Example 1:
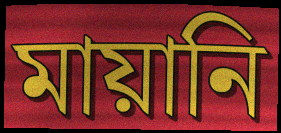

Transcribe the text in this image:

মায়ানি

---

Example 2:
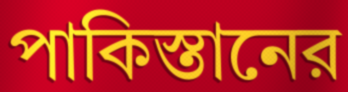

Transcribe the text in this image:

পাকিস্তানের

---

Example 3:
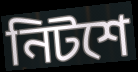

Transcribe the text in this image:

নিটশে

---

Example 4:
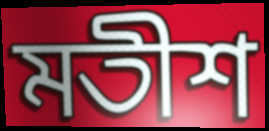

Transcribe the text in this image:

মতীশ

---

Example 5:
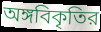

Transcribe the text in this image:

অঙ্গবিকৃতির